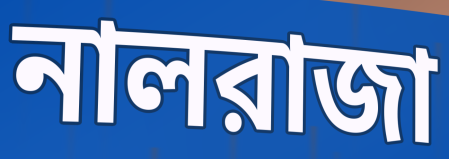
নালরাজা